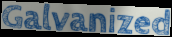
Galvanized